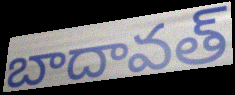
బాదావత్